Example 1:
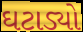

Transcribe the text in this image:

ઘટાડ્યો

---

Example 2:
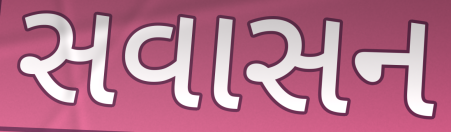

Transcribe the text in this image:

સવાસન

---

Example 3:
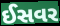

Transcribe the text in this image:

ઈસવર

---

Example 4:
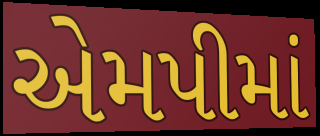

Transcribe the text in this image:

એમપીમાં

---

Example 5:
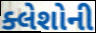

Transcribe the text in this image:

ક્લેશોની